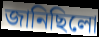
জানিছিলো